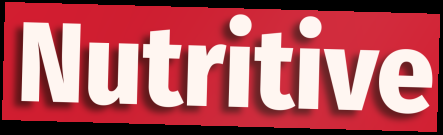
Nutritive